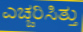
ಎಚ್ಚರಿಸಿತ್ತು